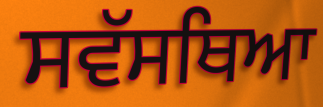
ਸਵੱਸਥਿਆ